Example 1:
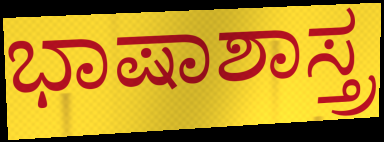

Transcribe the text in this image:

ಭಾಷಾಶಾಸ್ತ್ರ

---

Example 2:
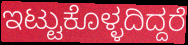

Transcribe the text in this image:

ಇಟ್ಟುಕೊಳ್ಳದಿದ್ದರೆ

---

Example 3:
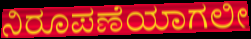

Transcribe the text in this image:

ನಿರೂಪಣೆಯಾಗಲೀ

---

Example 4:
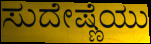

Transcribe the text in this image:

ಸುದೇಷ್ಣೆಯು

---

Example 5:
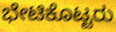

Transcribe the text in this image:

ಭೇಟಿಕೊಟ್ಟರು